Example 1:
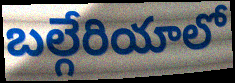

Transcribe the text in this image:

బల్గేరియాలో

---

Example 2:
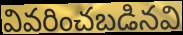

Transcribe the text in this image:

వివరించబడినవి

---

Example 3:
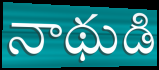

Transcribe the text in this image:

నాథుడి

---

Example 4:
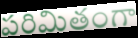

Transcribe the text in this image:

పరిమితంగా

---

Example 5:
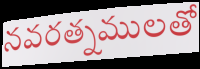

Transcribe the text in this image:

నవరత్నములతో